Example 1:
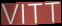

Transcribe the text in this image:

VITT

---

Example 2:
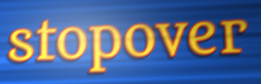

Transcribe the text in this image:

stopover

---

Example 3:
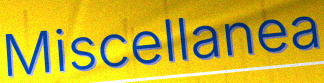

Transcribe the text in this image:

Miscellanea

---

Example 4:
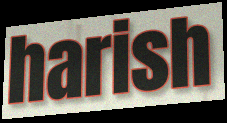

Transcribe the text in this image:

harish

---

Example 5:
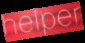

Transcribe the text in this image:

helper